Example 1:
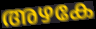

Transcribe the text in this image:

അഴകേ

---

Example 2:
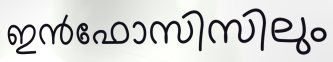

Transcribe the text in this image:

ഇൻഫോസിസിലും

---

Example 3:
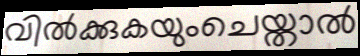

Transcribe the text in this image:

വിൽക്കുകയുംചെയ്താൽ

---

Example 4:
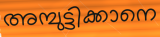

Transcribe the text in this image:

അമ്പുട്ടിക്കാനെ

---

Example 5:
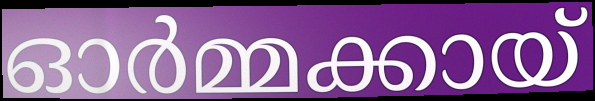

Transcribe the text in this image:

ഓർമ്മക്കായ്